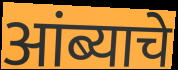
आंब्याचे